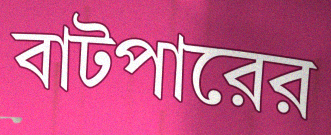
বাটপারের